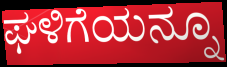
ಘಳಿಗೆಯನ್ನೂ